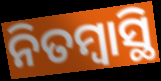
ନିତମ୍ବାସ୍ଥି